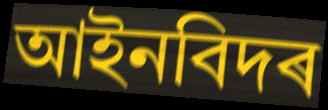
আইনবিদৰ